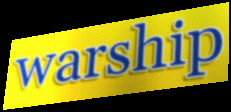
warship